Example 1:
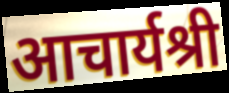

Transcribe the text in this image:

आचार्यश्री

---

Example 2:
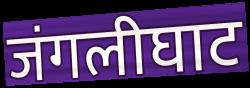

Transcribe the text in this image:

जंगलीघाट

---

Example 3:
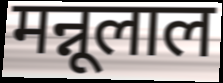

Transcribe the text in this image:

मन्नूलाल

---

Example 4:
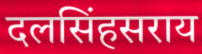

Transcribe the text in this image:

दलसिंहसराय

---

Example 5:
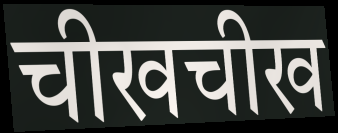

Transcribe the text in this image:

चीखचीख